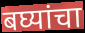
बघ्यांचा